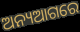
ଅନ୍ୟଆଗରେ